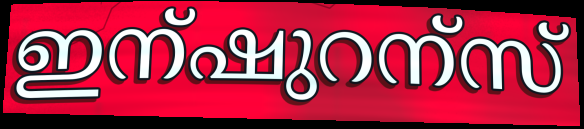
ഇന്ഷുറന്സ്